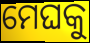
ମେଘକୁ